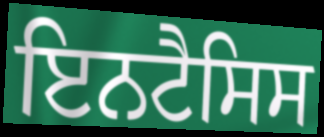
ਇਨਟੈਸਿਸ